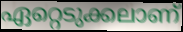
ഏറ്റെടുക്കലാണ്